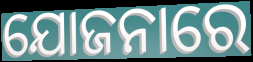
ଯୋଜନାରେ